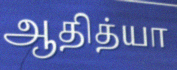
ஆதித்யா